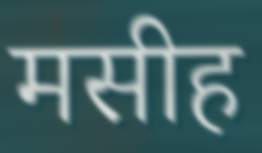
मसीह